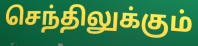
செந்திலுக்கும்